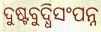
ଦୁଷ୍ଟବୁଦ୍ଧିସଂପନ୍ନ